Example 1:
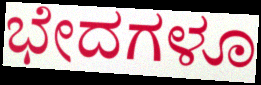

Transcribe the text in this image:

ಭೇದಗಳೂ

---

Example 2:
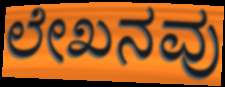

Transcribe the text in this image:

ಲೇಖನವು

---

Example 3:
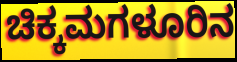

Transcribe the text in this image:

ಚಿಕ್ಕಮಗಳೂರಿನ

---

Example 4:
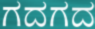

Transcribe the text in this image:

ಗದಗದ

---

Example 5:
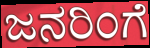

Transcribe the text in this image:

ಜನರಿಂಗೆ